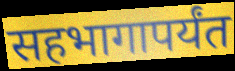
सहभागापर्यंत